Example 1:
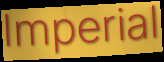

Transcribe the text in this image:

Imperial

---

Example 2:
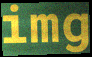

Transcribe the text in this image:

img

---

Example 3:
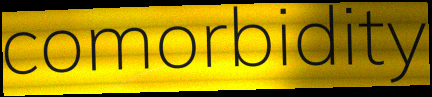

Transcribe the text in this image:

comorbidity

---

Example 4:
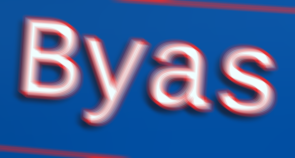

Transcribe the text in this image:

Byas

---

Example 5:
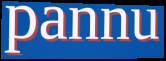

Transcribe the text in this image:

pannu